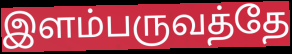
இளம்பருவத்தே